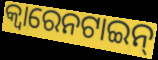
କ୍ୱାରେନଟାଇନ୍